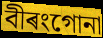
বীৰংগোনা